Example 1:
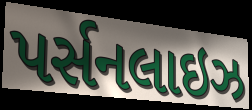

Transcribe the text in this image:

પર્સનલાઇઝ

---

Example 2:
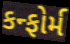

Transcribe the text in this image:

કન્ફોર્મ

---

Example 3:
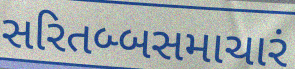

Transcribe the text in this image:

સરિતબ્બસમાચારં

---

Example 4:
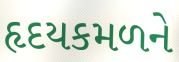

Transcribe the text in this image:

હૃદયકમળને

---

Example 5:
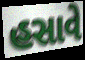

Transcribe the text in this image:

હસાવે